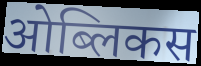
ओब्लिकस